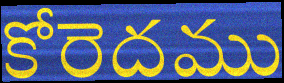
కోరెదము